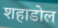
शहाडोल